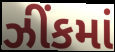
ઝીંકમાં